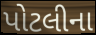
પોટલીના